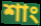
শাং